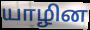
யாழின